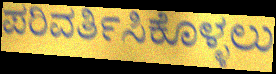
ಪರಿವರ್ತಿಸಿಕೊಳ್ಳಲು